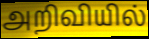
அறிவியில்